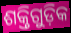
ଶକ୍ତିଗୁଡ଼ିକ